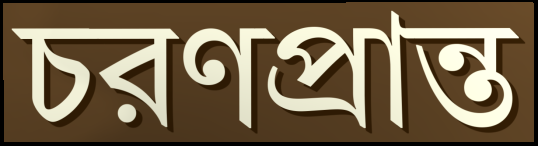
চরণপ্রান্ত